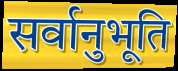
सर्वानुभूति